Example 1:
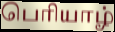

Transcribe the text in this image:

பெரியாழ்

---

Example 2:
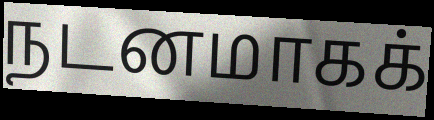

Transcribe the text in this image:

நடனமாகக்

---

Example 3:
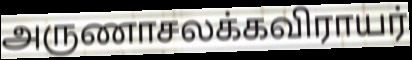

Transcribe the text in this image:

அருணாசலக்கவிராயர்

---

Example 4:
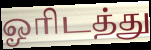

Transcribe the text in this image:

ஓரிடத்து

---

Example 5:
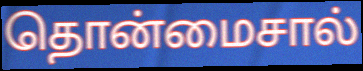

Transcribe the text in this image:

தொன்மைசால்